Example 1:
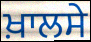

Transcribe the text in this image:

ਖ਼ਾਲਸੇ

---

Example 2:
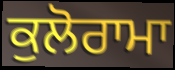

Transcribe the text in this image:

ਕੁਲੋਰਾਮਾ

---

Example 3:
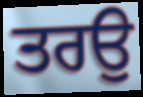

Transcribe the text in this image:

ਤਰਉ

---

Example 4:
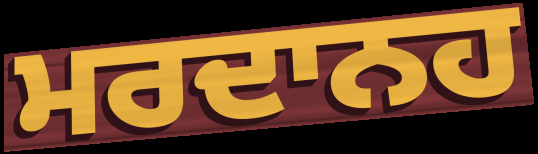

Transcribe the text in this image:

ਮਰਦਾਨਹ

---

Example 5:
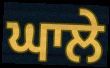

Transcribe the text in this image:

ਘਾਲੇ